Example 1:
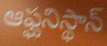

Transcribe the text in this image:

ఆఫ్ఘనిస్థాన్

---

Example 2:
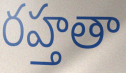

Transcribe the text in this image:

రహ్తతా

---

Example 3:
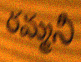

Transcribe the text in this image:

రమ్మనీ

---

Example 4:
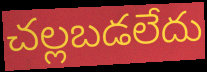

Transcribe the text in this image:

చల్లబడలేదు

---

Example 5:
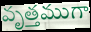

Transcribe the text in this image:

వృత్తముగా